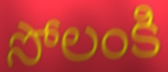
సోలంకి